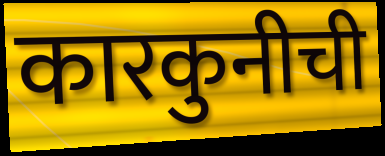
कारकुनीची